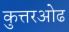
कुत्तरओढ